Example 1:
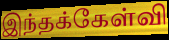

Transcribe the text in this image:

இந்தக்கேள்வி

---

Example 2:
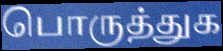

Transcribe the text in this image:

பொருத்துக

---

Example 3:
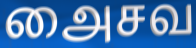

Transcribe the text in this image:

அைசவ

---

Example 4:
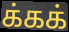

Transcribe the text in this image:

க்கக்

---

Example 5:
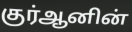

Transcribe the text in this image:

குர்ஆனின்